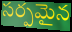
సర్పమైన